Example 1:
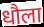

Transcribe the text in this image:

धौला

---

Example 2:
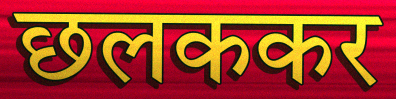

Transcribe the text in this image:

छलककर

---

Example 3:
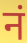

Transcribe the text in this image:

नं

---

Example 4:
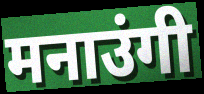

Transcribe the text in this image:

मनाउंगी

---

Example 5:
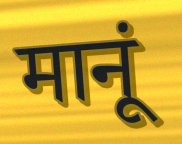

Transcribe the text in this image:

मानूं